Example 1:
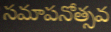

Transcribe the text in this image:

సమాపనోత్సవ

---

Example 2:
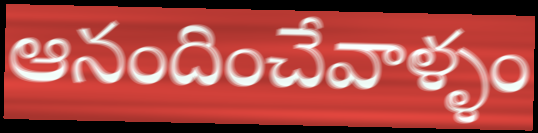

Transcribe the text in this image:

ఆనందించేవాళ్ళం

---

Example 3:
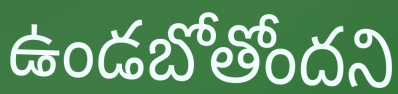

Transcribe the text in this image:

ఉండబోతోందని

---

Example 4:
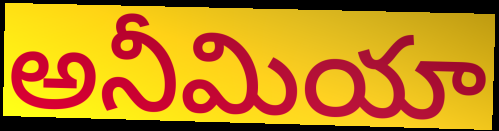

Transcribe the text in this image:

అనీమియా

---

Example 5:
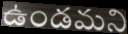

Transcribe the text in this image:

ఉండమని